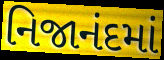
નિજાનંદમાં